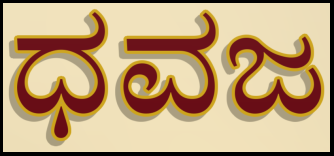
ಧವಜ